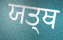
ਯਤ੍ਥ